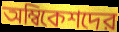
অম্বিকেশদের